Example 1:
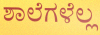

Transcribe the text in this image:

ಶಾಲೆಗಳೆಲ್ಲ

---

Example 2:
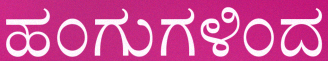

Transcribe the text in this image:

ಹಂಗುಗಳಿಂದ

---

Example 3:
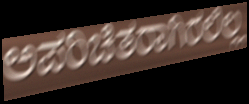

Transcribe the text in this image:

ಅಪರಿಚಿತರಾಗಿರಲಿಲ್ಲ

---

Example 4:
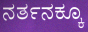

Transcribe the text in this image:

ನರ್ತನಕ್ಕೂ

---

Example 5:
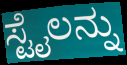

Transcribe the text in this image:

ಸ್ಟೈಲನ್ನು